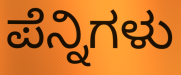
ಪೆನ್ನಿಗಳು